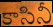
కాసినీ